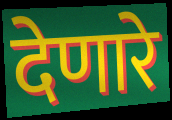
देणारे